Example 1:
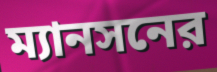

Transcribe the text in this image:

ম্যানসনের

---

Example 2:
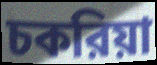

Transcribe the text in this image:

চকরিয়া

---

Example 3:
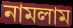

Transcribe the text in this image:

নামলাম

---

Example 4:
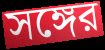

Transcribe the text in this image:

সঙ্গের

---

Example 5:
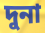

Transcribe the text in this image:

দুনা